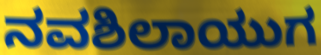
ನವಶಿಲಾಯುಗ